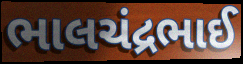
ભાલચંદ્રભાઈ